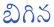
బిగిన